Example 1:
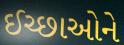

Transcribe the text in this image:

ઈચ્છાઓને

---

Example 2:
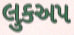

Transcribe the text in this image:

લુકઅપ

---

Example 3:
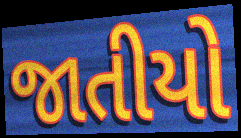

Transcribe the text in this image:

જાતીયો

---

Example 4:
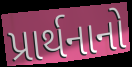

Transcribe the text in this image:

પ્રાર્થનાનો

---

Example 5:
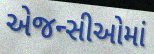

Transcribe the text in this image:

એજન્સીઓમાં